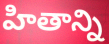
హితాన్ని